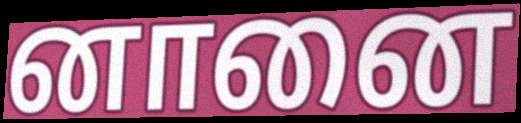
னானை